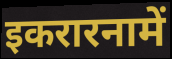
इकरारनामें